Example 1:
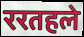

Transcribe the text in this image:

ररतहले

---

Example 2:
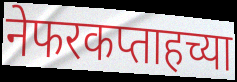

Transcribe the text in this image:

नेफरकप्ताहच्या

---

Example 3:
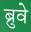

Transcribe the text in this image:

ब्रुवे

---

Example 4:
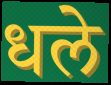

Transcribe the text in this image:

धले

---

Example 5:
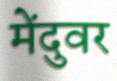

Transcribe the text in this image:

मेंदुवर